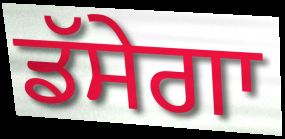
ਡੱਸੇਗਾ